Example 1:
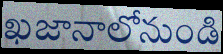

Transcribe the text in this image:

ఖజానాలోనుండి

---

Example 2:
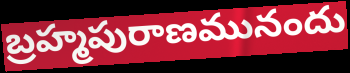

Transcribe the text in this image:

బ్రహ్మపురాణమునందు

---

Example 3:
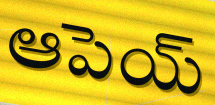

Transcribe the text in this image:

ఆపెయ్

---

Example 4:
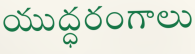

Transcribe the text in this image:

యుద్ధరంగాలు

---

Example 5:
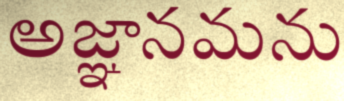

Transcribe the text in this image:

అజ్ఞానమను